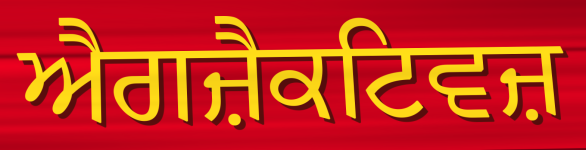
ਐਗਜ਼ੈਕਟਿਵਜ਼